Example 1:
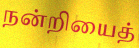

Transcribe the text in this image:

நன்றியைத்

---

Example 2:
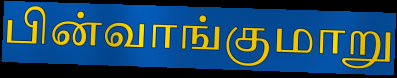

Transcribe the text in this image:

பின்வாங்குமாறு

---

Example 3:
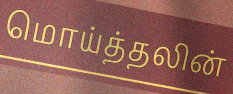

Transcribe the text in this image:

மொய்த்தலின்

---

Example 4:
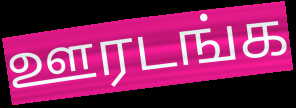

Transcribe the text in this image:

ஊரடங்க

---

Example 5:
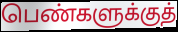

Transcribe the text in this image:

பெண்களுக்குத்